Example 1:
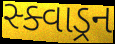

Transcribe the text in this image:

સ્ક્વાડ્રન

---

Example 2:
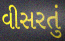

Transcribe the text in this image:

વીસરતું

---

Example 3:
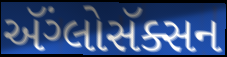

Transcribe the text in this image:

ઍંગ્લોસૅક્સન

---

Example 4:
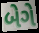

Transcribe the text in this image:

બેગે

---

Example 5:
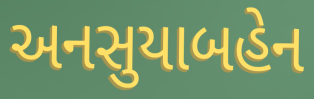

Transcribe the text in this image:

અનસુયાબહેન